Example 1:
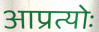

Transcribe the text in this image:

आप्रत्योः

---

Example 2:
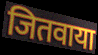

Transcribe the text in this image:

जितवाया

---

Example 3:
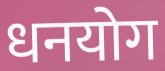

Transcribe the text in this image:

धनयोग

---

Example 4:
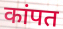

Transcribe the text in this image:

कांपत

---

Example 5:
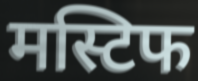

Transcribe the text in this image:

मस्टिफ